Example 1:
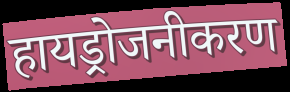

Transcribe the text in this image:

हायड्रोजनीकरण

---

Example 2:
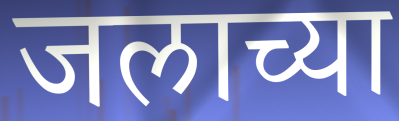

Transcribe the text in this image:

जलाच्या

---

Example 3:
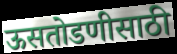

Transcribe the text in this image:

ऊसतोडणीसाठी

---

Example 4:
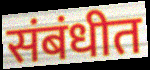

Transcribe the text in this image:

संबंधीत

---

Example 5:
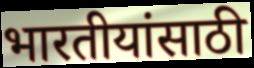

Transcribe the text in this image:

भारतीयांसाठी